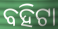
ବହିଟା